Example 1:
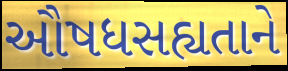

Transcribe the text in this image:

ઔષધસહ્યતાને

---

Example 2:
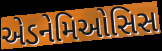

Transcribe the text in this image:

એડનેમિઓસિસ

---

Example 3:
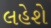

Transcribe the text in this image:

લહેશે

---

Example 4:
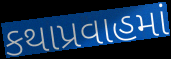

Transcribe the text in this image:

કથાપ્રવાહમાં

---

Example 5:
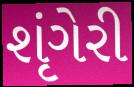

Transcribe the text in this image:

શૃંગેરી